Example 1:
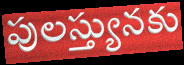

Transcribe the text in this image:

పులస్త్యునకు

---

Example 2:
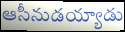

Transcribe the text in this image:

ఆసీనుడయ్యాడు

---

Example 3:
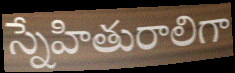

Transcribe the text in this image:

స్నేహితురాలిగా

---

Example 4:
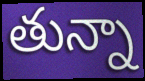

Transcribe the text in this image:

తున్నా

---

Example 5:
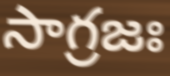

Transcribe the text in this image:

సాగ్రజః